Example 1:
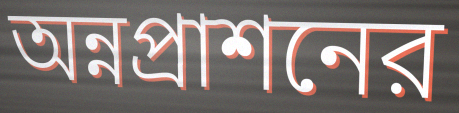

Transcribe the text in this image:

অন্নপ্রাশনের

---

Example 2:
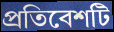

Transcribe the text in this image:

প্রতিবেশটি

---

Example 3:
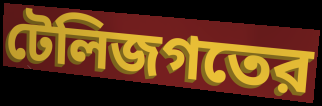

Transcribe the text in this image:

টেলিজগতের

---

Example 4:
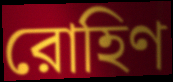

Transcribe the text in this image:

রোহিণ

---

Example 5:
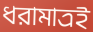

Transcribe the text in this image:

ধরামাত্রই